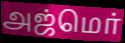
அஜ்மெர்